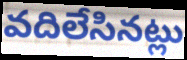
వదిలేసినట్లు